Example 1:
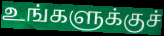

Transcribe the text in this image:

உங்களுக்குச்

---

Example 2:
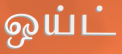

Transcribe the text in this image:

ஒய்ட்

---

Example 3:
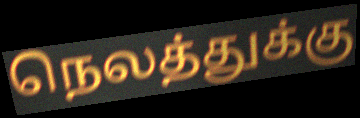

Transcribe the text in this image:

நெலத்துக்கு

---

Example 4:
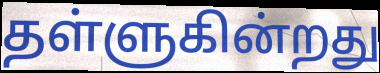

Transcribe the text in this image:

தள்ளுகின்றது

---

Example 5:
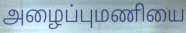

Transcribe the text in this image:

அழைப்புமணியை